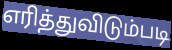
எரித்துவிடும்படி